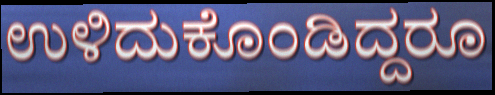
ಉಳಿದುಕೊಂಡಿದ್ದರೂ